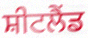
ਸ਼ੀਟਲੈਂਡ